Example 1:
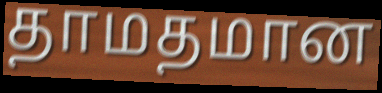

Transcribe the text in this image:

தாமதமான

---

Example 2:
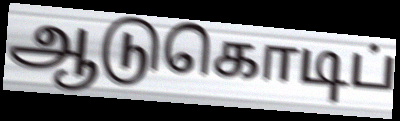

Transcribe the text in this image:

ஆடுகொடிப்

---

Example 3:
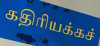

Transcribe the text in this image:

கதிரியக்கச்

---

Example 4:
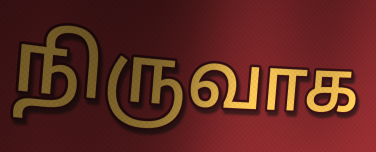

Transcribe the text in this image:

நிருவாக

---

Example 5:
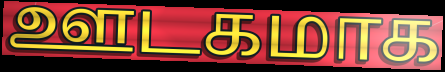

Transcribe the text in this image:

ஊடகமாக